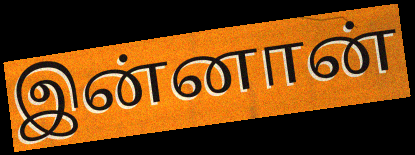
இன்னான்